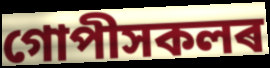
গোপীসকলৰ